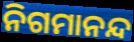
ନିଗମାନନ୍ଦ